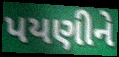
પયણીને